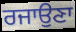
ਰਜਾਉਣਾ